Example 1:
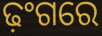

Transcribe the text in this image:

ଢ଼ଂଗରେ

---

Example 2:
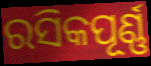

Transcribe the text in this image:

ରସିକପୂର୍ଣ୍ଣ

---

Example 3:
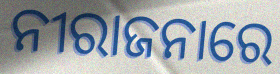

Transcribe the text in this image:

ନୀରାଜନାରେ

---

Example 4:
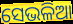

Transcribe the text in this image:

ସେଭଳିଆ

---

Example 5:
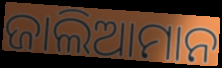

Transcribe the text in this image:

ଜାଲିଆମାନ